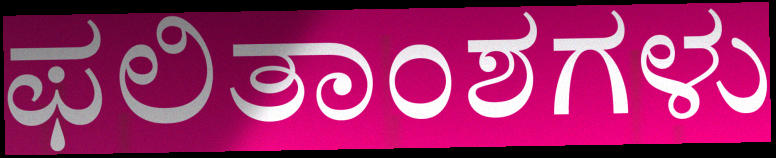
ಫಲಿತಾಂಶಗಳು